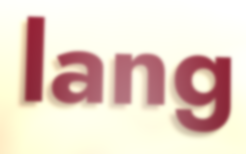
lang